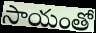
సాయంతో